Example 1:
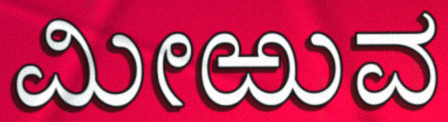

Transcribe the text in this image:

ಮೀಱುವ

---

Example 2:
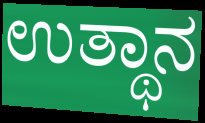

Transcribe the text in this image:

ಉತ್ಥಾನ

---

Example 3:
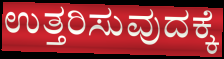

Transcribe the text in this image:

ಉತ್ತರಿಸುವುದಕ್ಕೆ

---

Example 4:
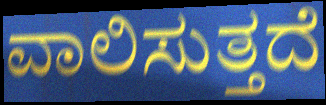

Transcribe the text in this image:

ವಾಲಿಸುತ್ತದೆ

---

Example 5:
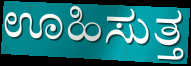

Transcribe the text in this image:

ಊಹಿಸುತ್ತ